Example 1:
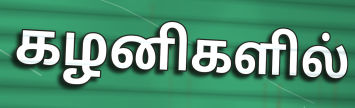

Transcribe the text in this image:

கழனிகளில்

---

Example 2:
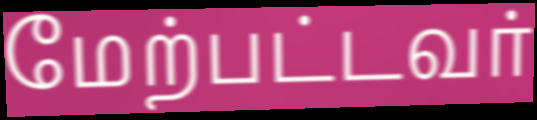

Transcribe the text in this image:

மேற்பட்டவர்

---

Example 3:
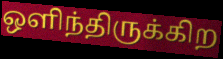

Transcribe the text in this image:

ஒளிந்திருக்கிற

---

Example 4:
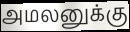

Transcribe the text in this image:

அமலனுக்கு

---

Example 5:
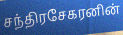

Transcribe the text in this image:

சந்திரசேகரனின்